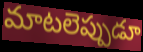
మాటలెప్పుడూ